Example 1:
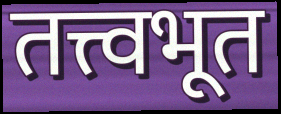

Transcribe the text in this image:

तत्त्वभूत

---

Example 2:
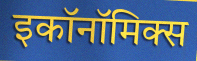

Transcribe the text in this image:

इकॉनॉमिक्‍स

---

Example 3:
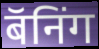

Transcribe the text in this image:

बॅनिंग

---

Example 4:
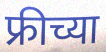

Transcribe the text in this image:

फ्रीच्या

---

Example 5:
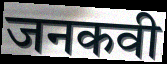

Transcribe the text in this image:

जनकवी